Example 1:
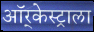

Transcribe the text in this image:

ऑर्केस्ट्राला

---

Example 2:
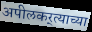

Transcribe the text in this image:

अपीलकर्त्याच्या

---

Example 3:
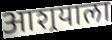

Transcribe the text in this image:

आश्रयाला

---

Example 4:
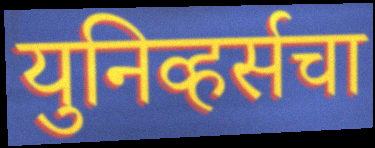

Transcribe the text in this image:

युनिव्हर्सचा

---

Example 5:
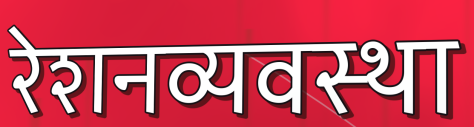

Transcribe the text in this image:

रेशनव्यवस्था